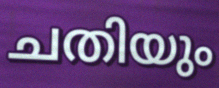
ചതിയും